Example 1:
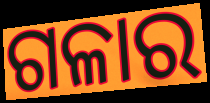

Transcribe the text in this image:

ଗଳାର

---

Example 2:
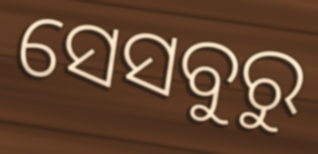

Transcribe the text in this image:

ସେସବୁରୁ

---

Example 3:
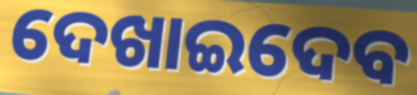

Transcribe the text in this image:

ଦେଖାଇଦେବ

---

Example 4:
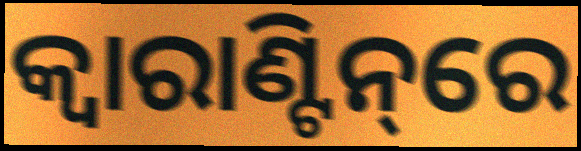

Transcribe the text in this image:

କ୍ବାରାଣ୍ଟିନ୍‌ରେ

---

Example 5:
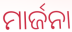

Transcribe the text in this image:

ମାର୍ଜନା